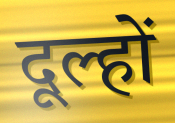
दूल्‍हों